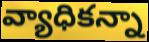
వ్యాధికన్నా